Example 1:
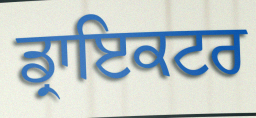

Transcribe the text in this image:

ਡ੍ਰਾਇਕਟਰ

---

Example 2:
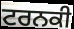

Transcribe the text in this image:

ਟਰਨਕੀ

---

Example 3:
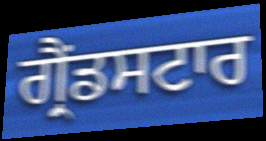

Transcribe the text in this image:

ਗ੍ਰੈਂਡਸਟਾਰ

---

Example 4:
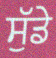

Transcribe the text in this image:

ਸੁੱਡੇ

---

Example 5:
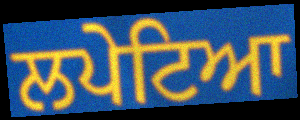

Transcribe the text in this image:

ਲਪੇਟਿਆ